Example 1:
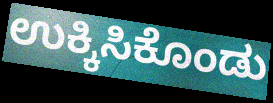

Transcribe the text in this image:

ಉಕ್ಕಿಸಿಕೊಂಡು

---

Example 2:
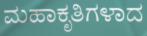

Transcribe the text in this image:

ಮಹಾಕೃತಿಗಳಾದ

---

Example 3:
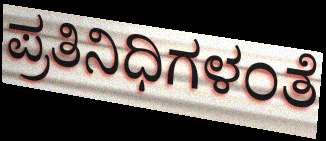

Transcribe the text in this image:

ಪ್ರತಿನಿಧಿಗಳಂತೆ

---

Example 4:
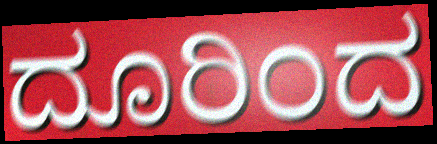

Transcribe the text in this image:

ದೂರಿಂದ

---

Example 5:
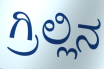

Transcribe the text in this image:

ಗ್ರಿಲ್ಲಿನ